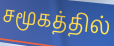
சமூகத்தில்